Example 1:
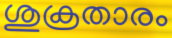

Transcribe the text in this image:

ശുക്രതാരം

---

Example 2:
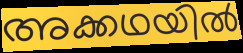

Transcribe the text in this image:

അക്കഥയിൽ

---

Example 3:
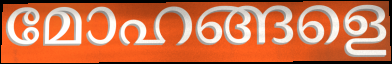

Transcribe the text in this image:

മോഹങ്ങളെ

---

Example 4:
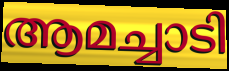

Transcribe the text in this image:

ആമച്ചാടി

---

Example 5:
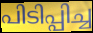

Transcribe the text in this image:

പിടിപ്പിച്ച